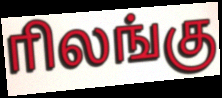
ரிலங்கு